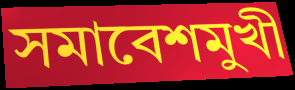
সমাবেশমুখী